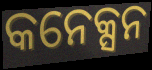
କନେକ୍ସନ